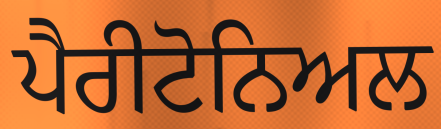
ਪੈਰੀਟੋਨਿਅਲ